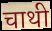
चाथी